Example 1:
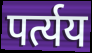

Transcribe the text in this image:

पर्त्यय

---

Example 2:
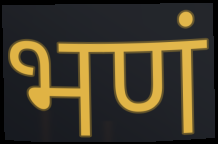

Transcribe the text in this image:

भणं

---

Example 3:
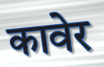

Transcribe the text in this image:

कावेर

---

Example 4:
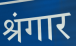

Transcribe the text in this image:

श्रंगार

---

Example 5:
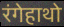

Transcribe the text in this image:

रंगेहाथो